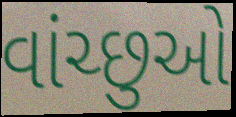
વાંચ્છુઓ